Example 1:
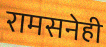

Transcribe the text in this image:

रामसनेही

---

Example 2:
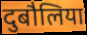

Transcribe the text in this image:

दुबौलिया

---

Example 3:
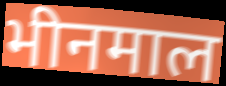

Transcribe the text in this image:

भीनमाल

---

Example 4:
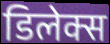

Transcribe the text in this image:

डिलेक्स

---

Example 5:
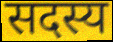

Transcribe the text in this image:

सदस्य